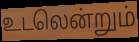
உடலென்றும்